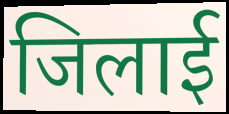
जिलाई